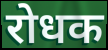
रोधक